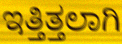
ಇತ್ತಿತ್ತಲಾಗಿ